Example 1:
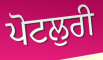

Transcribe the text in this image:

ਪੋਟਲੁਰੀ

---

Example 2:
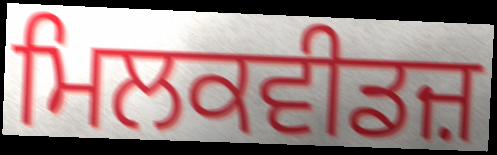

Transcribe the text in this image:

ਮਿਲਕਵੀਡਜ਼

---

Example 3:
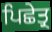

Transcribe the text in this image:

ਪਿਛੇਤ੍ਰ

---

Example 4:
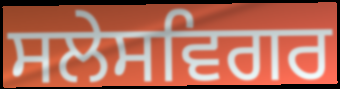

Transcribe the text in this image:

ਸਲੇਸਵਿਗਰ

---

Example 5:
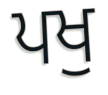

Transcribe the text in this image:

ਪਖੁ